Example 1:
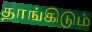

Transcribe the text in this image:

தாங்கிடும்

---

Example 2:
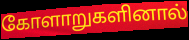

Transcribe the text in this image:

கோளாறுகளினால்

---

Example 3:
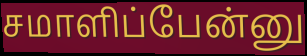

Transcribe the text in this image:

சமாளிப்பேன்னு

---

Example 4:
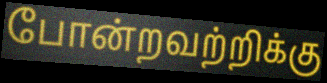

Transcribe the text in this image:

போன்றவற்றிக்கு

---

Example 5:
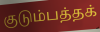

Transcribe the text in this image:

குடும்பத்தக்